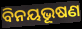
ବିନୟଭୂଷଣ